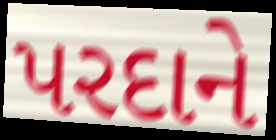
પરદાને